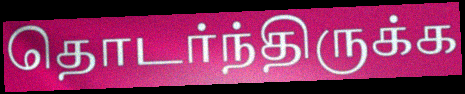
தொடர்ந்திருக்க